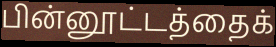
பின்னூட்டத்தைக்